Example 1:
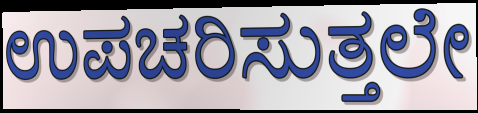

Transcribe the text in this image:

ಉಪಚರಿಸುತ್ತಲೇ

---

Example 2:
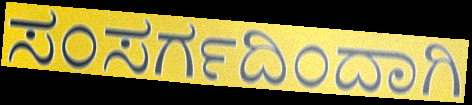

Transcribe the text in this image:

ಸಂಸರ್ಗದಿಂದಾಗಿ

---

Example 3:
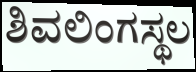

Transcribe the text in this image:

ಶಿವಲಿಂಗಸ್ಥಲ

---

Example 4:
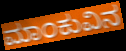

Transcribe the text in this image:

ಮಾಂಕುವಿನ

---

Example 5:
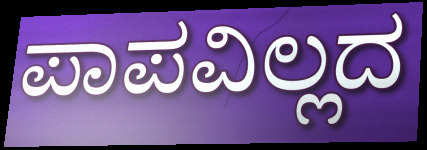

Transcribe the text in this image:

ಪಾಪವಿಲ್ಲದ